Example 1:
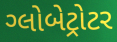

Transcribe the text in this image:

ગ્લોબેટ્રોટર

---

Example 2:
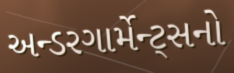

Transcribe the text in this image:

અન્ડરગાર્મેન્ટ્સનો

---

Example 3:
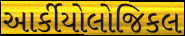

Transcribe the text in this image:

આર્કીયોલોજિકલ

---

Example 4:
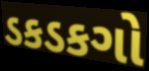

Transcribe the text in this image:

ડકડકગો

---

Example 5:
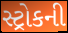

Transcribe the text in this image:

સ્ટ્રોકની